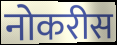
नोकरीस